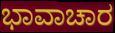
ಭಾವಾಚಾರ